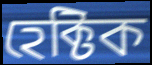
হেক্টিক